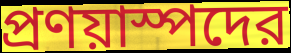
প্রণয়াস্পদের